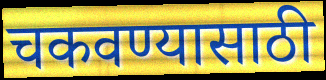
चकवण्यासाठी